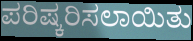
ಪರಿಷ್ಕರಿಸಲಾಯಿತು